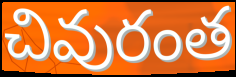
చివురంత